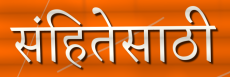
संहितेसाठी